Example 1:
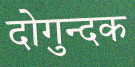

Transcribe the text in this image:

दोगुन्दक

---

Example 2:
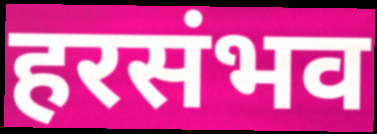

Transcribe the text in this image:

हरसंभव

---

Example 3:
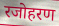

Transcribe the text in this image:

रजोहरण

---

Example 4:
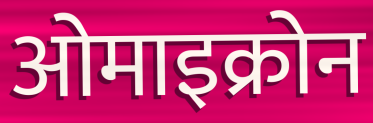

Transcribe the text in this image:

ओमाइक्रोन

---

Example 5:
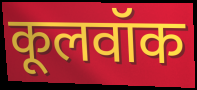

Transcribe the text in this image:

कूलवॉक